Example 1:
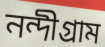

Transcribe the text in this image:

নন্দীগ্রাম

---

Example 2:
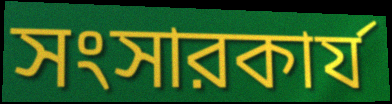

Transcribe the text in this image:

সংসারকার্য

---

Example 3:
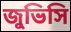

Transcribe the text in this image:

জুভিসি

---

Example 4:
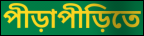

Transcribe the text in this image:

পীড়াপীড়িতে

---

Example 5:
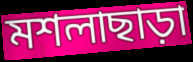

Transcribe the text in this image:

মশলাছাড়া